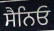
ਸੈਨਿਓ